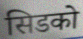
सिडको